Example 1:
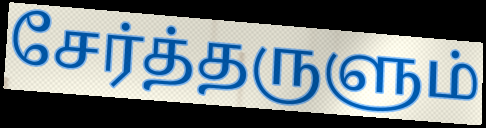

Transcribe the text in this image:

சேர்த்தருளும்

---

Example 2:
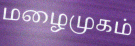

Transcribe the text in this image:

மழைமுகம்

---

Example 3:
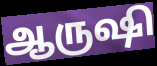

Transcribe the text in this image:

ஆருஷி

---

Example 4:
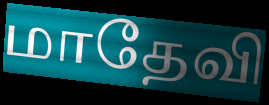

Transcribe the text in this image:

மாதேவி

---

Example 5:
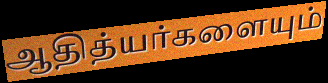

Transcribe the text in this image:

ஆதித்யர்களையும்